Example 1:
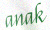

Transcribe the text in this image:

anak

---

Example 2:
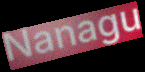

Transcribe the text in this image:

Nanagu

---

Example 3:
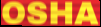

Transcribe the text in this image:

OSHA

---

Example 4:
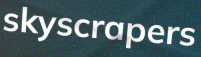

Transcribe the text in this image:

skyscrapers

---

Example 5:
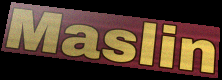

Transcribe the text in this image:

Maslin